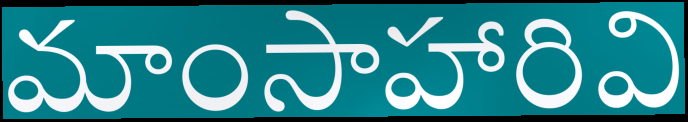
మాంసాహారివి